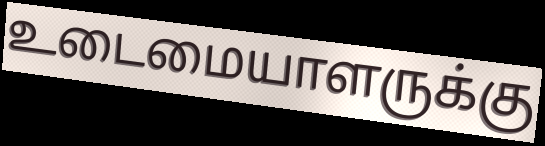
உடைமையாளருக்கு